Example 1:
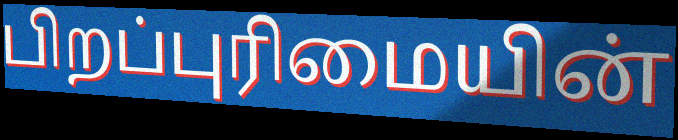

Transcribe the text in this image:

பிறப்புரிமையின்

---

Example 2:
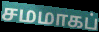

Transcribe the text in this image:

சமமாகப்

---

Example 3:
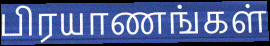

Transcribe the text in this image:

பிரயாணங்கள்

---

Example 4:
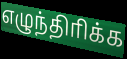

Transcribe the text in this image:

எழுந்திரிக்க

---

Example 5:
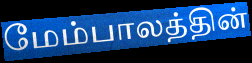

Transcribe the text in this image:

மேம்பாலத்தின்